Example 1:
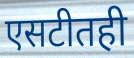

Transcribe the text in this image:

एसटीतही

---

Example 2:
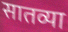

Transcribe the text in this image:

सातव्या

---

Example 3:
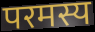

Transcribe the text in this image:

परमस्य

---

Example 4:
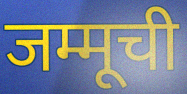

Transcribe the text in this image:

जम्मूची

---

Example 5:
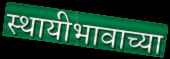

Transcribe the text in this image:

स्थायीभावाच्या